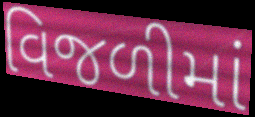
વિજળીમાં